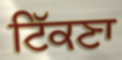
ਟਿੱਕਣਾ